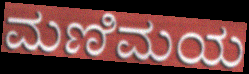
ಮಣಿಮಯ